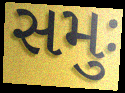
સમુઃ